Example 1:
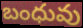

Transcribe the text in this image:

బంధువు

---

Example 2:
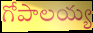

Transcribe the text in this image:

గోపాలయ్య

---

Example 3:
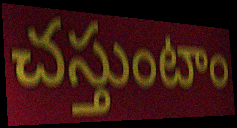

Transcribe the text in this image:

చస్తుంటాం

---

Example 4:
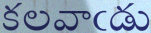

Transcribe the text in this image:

కలవాఁడు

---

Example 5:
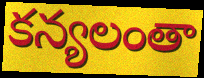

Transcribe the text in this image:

కన్యలంతా